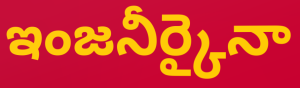
ఇంజనీర్కైనా